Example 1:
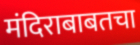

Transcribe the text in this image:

मंदिराबाबतचा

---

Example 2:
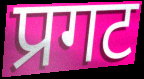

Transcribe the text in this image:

प्रगट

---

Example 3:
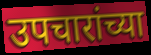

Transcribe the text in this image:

उपचारांच्या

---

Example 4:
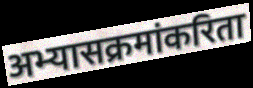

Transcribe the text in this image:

अभ्यासक्रमांकरिता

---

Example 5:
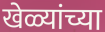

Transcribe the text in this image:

खेळ्यांच्या